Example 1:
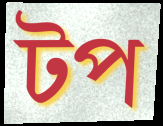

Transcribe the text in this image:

টপ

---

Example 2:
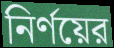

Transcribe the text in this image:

নির্ণয়ের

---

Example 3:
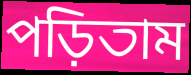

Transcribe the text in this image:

পড়িতাম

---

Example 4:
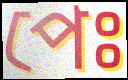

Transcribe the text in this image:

পেঃ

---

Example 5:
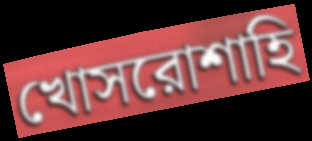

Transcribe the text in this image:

খোসরোশাহি